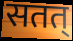
सतत्